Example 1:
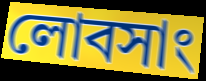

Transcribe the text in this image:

লোবসাং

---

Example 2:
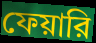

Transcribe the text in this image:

ফেয়ারি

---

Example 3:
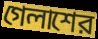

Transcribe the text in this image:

গেলাশের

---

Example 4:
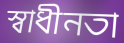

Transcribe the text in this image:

স্বাধীনতা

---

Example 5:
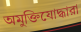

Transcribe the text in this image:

অমুক্তিযোদ্ধারা